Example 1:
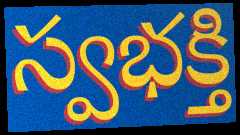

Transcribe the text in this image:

స్వభక్తి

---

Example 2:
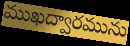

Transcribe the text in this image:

ముఖద్వారమును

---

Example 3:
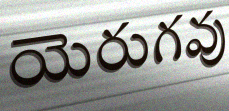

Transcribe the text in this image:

యెరుగవు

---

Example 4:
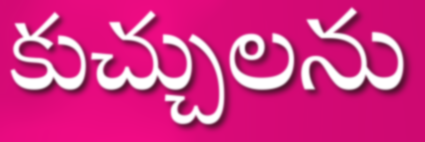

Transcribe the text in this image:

కుచ్చులను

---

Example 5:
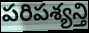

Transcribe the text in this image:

పరిపశ్యన్తి